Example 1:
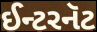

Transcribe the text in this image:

ઈન્ટરનૅટ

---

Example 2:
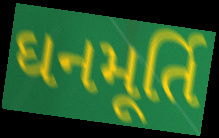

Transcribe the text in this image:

ઘનમૂર્તિ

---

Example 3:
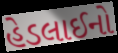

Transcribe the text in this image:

હેડલાઈનો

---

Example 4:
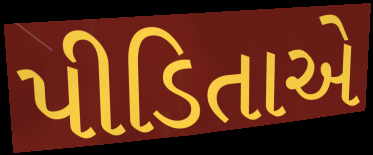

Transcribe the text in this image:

પીડિતાએ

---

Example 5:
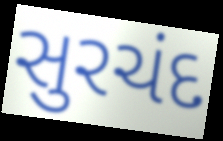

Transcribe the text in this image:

સુરચંદ